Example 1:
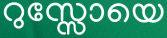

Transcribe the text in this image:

റുസ്സോയെ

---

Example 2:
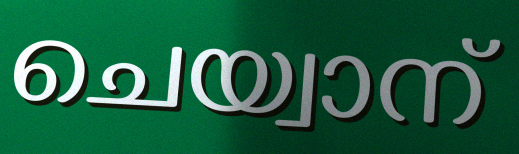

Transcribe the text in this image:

ചെയ്വാന്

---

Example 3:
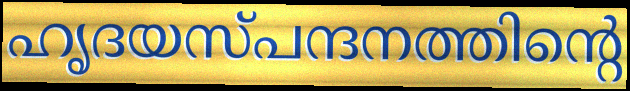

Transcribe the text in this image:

ഹൃദയസ്പന്ദനത്തിന്റെ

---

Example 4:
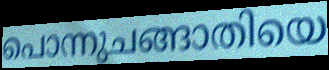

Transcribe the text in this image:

പൊന്നുചങ്ങാതിയെ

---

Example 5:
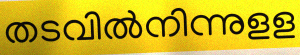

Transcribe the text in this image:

തടവിൽനിന്നുളള